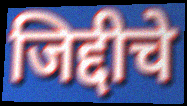
जिद्दीचे